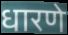
धारणे